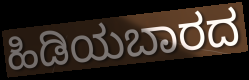
ಹಿಡಿಯಬಾರದ